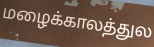
மழைக்காலத்துல